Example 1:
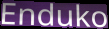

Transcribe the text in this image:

Enduko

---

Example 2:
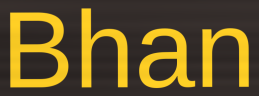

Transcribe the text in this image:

Bhan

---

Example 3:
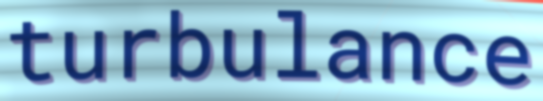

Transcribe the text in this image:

turbulance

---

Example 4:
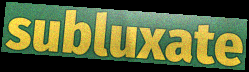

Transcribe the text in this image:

subluxate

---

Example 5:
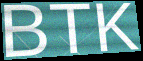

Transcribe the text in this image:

BTK